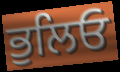
ਭੁਲਿਓ